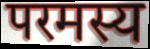
परमस्य